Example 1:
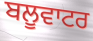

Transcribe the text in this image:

ਬਲੂਵਾਟਰ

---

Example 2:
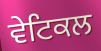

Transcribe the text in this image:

ਵੇਟਿਕਲ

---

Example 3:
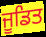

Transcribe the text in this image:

ਜੂਡਿਤ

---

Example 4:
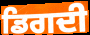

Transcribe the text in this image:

ਡਿਗਦੀ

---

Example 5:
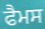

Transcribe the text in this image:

ਫੈਮਸ